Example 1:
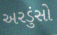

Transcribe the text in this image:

અરડુંસો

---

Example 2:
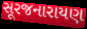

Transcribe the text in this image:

સૂરજનારાયણ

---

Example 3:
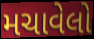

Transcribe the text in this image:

મચાવેલો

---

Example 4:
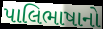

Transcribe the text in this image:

પાલિભાષાનો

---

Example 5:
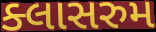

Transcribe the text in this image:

ક્લાસરુમ